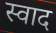
स्वाद